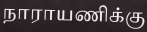
நாராயணிக்கு